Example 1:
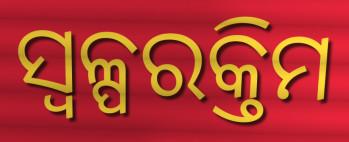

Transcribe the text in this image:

ସ୍ୱଳ୍ପରକ୍ତିମ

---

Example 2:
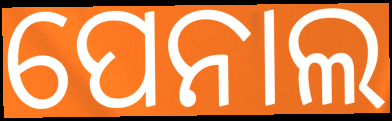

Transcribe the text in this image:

ପେନାଲ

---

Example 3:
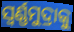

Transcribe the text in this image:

ସ୍ଵର୍ଣ୍ଣମୁଦ୍ରାକୁ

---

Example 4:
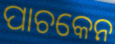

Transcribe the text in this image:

ପାଚକେନ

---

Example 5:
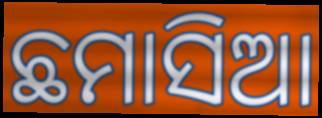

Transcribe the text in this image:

ଛମାସିଆ